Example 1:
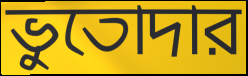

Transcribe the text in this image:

ভুতোদার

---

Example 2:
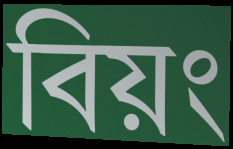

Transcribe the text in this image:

বিয়ং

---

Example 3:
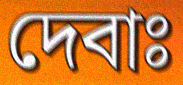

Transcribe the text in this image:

দেবাঃ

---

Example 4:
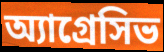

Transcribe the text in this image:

অ্যাগ্রেসিভ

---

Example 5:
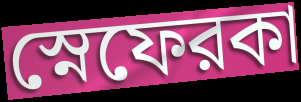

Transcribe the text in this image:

স্নেফেরকা